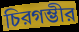
চিরগম্ভীর